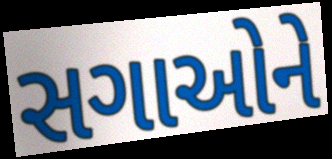
સગાઓને